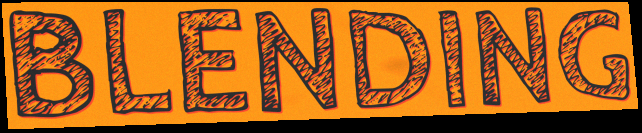
BLENDING